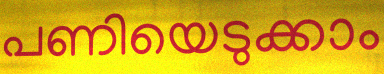
പണിയെടുക്കാം